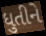
ધુતીને